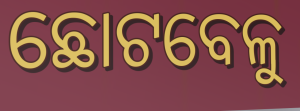
ଛୋଟବେଳୁ